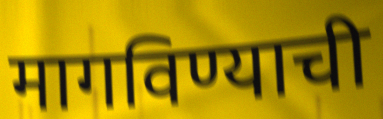
मागविण्याची